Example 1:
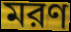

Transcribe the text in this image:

মরণ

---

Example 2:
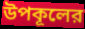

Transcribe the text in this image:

উপকূলের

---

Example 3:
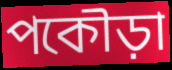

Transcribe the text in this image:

পকৌড়া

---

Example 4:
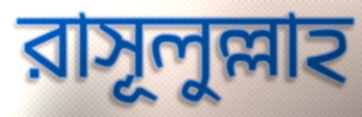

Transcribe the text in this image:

রাসূলুল্লাহ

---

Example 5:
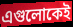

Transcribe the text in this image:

এগুলোকেই